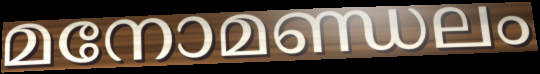
മനോമണ്ഡലം